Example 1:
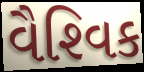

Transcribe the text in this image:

વૈશ્‍વિક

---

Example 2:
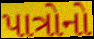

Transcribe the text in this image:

પાત્રોનો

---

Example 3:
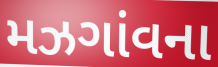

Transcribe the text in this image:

મઝગાંવના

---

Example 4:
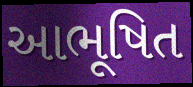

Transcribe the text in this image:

આભૂષિત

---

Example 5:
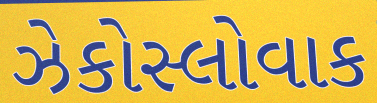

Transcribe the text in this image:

ઝેકોસ્લોવાક